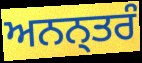
ਅਨਨ੍ਤਰੰ